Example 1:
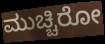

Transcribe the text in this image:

ಮುಚ್ಚಿರೋ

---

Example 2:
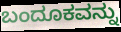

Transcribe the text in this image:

ಬಂದೂಕವನ್ನು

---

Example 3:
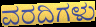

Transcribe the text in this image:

ವರದಿಗಳು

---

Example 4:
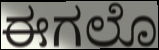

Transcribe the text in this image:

ಈಗಲೊ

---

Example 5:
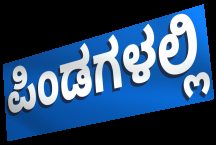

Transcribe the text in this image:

ಪಿಂಡಗಳಲ್ಲಿ